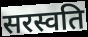
सरस्वति